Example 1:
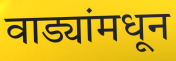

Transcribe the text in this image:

वाड्यांमधून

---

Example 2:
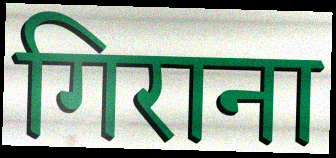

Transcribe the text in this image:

गिराना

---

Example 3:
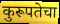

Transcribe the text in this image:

कुरूपतेचा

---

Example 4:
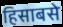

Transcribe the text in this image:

हिसाबसे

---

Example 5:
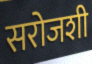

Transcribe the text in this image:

सरोजशी